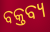
ବକ୍ତବ୍ଯ